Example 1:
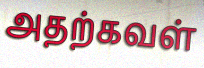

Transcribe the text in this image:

அதற்கவள்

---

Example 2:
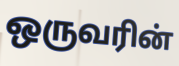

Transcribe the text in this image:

ஒருவரின்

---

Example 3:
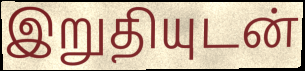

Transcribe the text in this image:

இறுதியுடன்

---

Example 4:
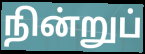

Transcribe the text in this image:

நின்றுப்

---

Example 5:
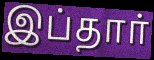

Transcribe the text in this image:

இப்தார்